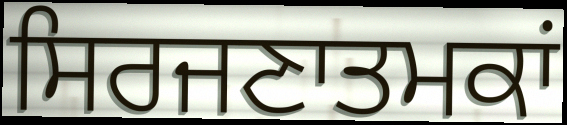
ਸਿਰਜਣਾਤਮਕਾਂ